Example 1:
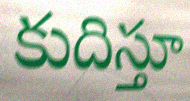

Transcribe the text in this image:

కుదిస్తూ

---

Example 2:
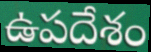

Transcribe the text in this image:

ఉపదేశం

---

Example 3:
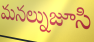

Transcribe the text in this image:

మనల్నుజూసి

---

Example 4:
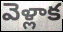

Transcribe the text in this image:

వెళ్లాక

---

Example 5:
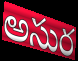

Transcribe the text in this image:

అసుర